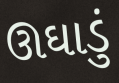
ઊઘાડું